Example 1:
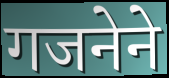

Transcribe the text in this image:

गजनेने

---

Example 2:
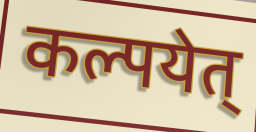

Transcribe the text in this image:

कल्पयेत्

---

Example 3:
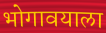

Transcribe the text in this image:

भोगावयाला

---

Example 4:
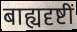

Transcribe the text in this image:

बाह्यदृष्टीं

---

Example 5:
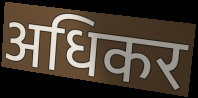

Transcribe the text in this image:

अधिकर